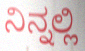
ನಿನ್ನಲ್ಲಿ